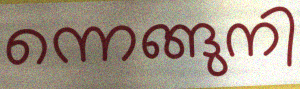
ന്നെങ്ങുനി